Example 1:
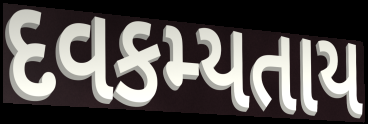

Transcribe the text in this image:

દવકમ્યતાય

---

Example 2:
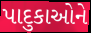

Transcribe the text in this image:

પાદુકાઓને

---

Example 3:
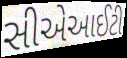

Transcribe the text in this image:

સીએઆઈટી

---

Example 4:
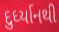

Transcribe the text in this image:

દુર્ધ્યાનથી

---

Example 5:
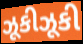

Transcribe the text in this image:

ઝૂકીઝૂકી